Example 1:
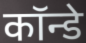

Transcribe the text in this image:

कॉन्डे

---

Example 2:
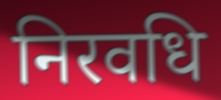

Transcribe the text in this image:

निरवधि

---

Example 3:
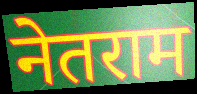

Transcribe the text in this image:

नेतराम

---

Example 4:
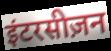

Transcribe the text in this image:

इंटरसीज़न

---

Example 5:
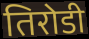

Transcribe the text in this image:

तिरोडी